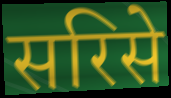
सरिसे